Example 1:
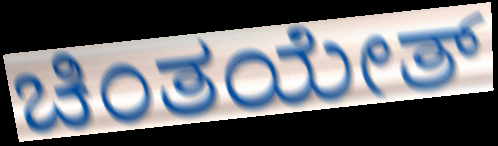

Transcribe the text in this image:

ಚಿಂತಯೇತ್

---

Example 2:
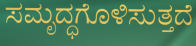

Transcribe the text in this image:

ಸಮೃದ್ಧಗೊಳಿಸುತ್ತದೆ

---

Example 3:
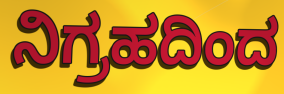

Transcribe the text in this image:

ನಿಗ್ರಹದಿಂದ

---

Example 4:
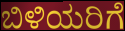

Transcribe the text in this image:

ಬಿಳಿಯರಿಗೆ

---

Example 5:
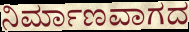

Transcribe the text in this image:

ನಿರ್ಮಾಣವಾಗದ